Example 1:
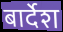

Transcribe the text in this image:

बार्देश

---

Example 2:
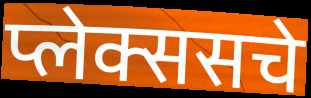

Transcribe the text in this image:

प्लेक्ससचे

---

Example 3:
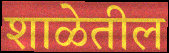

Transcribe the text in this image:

शाळेतील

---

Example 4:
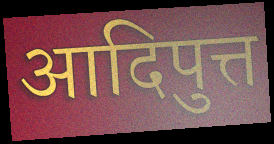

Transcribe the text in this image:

आदिपुत्त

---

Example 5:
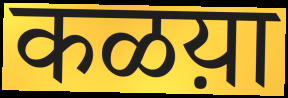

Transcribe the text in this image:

कळय़ा